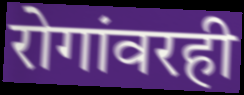
रोगांवरही